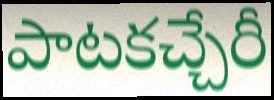
పాటకచ్చేరీ